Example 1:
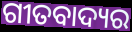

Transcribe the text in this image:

ଗୀତବାଦ୍ୟର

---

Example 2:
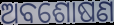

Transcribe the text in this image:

ଅବଶୋଷଣ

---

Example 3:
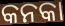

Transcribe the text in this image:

କନକା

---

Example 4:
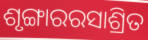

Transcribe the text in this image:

ଶୃଙ୍ଗାରରସାଶ୍ରିତ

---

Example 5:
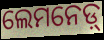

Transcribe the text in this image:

ଲେମନେଡ଼୍